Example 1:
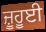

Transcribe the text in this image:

ਜ਼ੂਹੂਈ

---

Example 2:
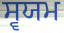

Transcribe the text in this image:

ਸ੍ਵਯਮ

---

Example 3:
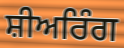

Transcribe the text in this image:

ਸ਼ੀਅਰਿੰਗ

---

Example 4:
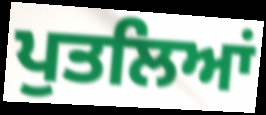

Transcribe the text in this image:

ਪੁਤਲਿਆਂ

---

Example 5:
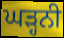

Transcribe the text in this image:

ਘੜ੍ਹਨੀ